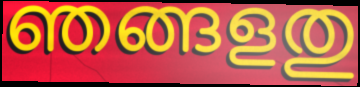
ഞങ്ങളതു